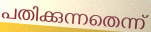
പതിക്കുന്നതെന്ന്